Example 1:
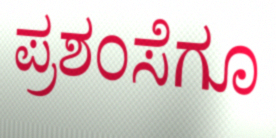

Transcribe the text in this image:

ಪ್ರಶಂಸೆಗೂ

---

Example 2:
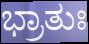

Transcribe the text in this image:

ಭ್ರಾತುಃ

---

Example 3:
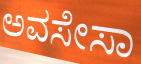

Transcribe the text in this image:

ಅವಸೇಸಾ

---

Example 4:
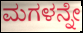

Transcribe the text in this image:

ಮಗಳನ್ನೇ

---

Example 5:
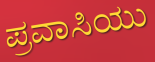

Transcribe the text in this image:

ಪ್ರವಾಸಿಯು